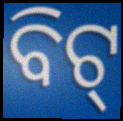
ବିଟ୍